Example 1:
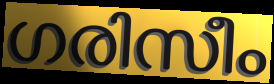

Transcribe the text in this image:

ഗരിസീം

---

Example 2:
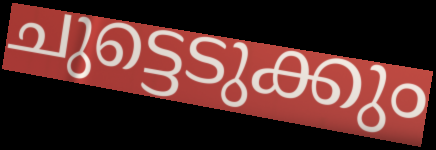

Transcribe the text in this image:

ചുട്ടെടുക്കും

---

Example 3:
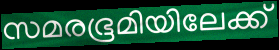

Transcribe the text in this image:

സമരഭൂമിയിലേക്ക്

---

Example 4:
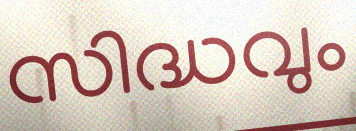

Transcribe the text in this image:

സിദ്ധവും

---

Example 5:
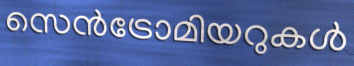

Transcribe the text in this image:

സെൻട്രോമിയറുകൾ